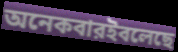
অনেকবারইবলেছে